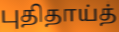
புதிதாய்த்